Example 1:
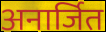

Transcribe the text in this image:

अनार्जित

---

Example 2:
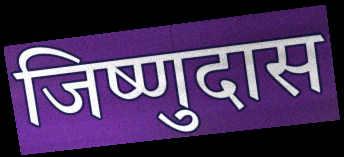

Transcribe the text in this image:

जिष्णुदास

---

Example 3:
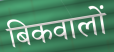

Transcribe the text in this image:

बिकवालों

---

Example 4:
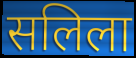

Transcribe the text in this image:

सलिला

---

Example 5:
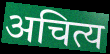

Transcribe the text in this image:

अचित्य